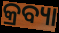
କ୍ରବ୍ୟା